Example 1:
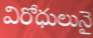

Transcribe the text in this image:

విరోధులునై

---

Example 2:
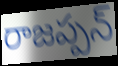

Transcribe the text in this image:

రాజప్పన్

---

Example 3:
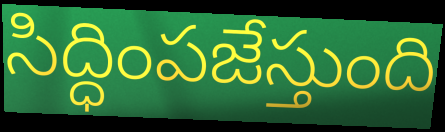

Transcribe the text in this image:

సిద్ధింపజేస్తుంది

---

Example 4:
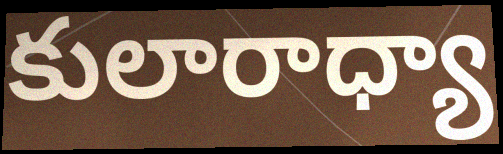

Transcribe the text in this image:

కులారాధ్యా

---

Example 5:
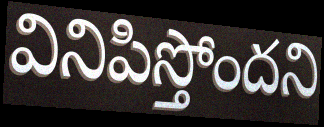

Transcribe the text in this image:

వినిపిస్తోందని